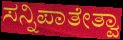
ಸನ್ನಿಪಾತೇತ್ವಾ